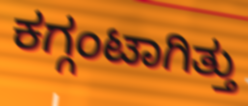
ಕಗ್ಗಂಟಾಗಿತ್ತು